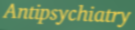
Antipsychiatry